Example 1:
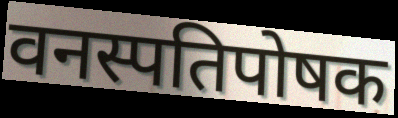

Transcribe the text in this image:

वनस्पतिपोषक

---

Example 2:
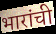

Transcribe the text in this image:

भारांची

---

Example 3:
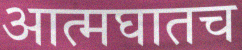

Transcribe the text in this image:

आत्मघातच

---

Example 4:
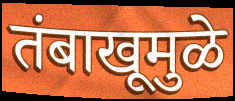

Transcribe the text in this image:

तंबाखूमुळे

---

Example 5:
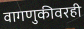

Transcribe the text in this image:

वागणुकीवरही